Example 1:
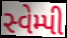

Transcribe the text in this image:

સ્વેમ્પી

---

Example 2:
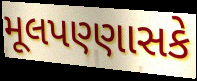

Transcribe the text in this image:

મૂલપણ્ણાસકે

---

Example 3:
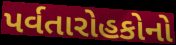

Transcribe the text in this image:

પર્વતારોહકોનો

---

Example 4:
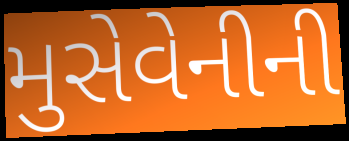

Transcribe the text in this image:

મુસેવેનીની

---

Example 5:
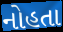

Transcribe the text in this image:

નોહતા